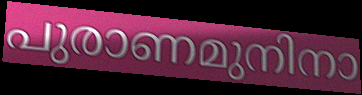
പുരാണമുനിനാ